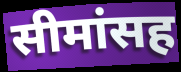
सीमांसह